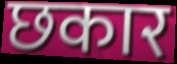
छकार